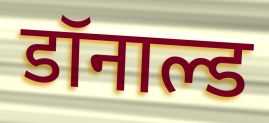
डॉनाल्ड